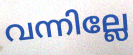
വന്നില്ലേ